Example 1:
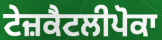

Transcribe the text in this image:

ਟੇਜ਼ਕੈਟਲੀਪੋਕਾ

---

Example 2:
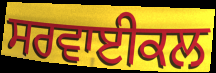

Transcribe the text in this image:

ਸਰਵਾਈਕਲ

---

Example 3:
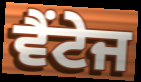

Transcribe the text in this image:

ਵੈਂਟੇਜ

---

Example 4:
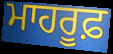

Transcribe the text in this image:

ਮਾਹਰੂਫ਼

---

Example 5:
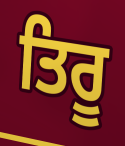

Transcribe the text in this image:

ਤਿਰੂ